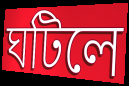
ঘটিলে